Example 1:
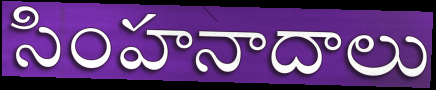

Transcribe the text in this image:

సింహనాదాలు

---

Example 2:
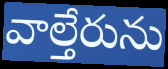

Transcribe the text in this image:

వాల్తేరును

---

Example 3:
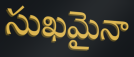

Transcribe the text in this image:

సుఖమైనా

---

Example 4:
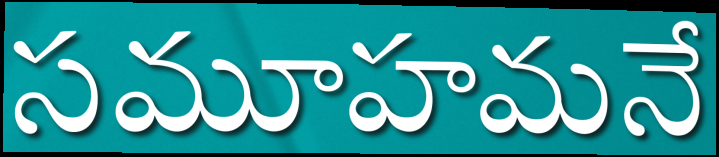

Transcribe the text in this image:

సమూహమనే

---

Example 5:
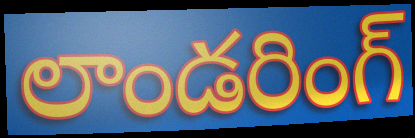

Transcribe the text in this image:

లాండరింగ్